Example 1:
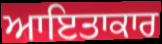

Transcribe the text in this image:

ਆਇਤਾਕਾਰ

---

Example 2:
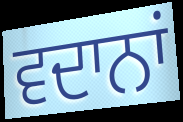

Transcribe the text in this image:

ਵਦਾਨਾਂ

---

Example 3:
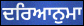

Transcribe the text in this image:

ਦਰਿਆਨੁਮਾ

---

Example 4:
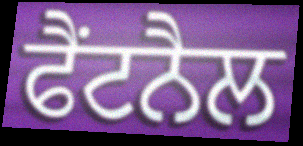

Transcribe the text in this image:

ਫੈਂਟਨੈਲ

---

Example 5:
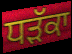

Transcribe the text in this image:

ਧੜੱਕਾ